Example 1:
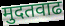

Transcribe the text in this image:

मुदतवाढ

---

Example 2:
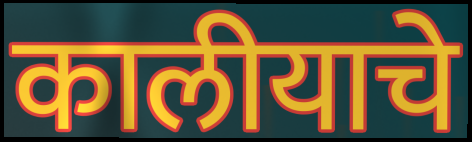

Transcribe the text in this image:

कालीयाचे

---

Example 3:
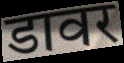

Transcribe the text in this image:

डावर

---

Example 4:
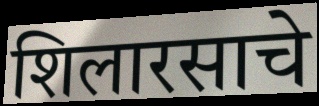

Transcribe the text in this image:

शिलारसाचे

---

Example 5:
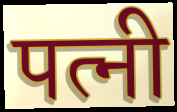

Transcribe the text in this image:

पत्नी